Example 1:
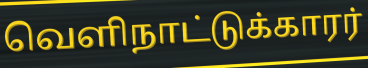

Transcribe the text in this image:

வெளிநாட்டுக்காரர்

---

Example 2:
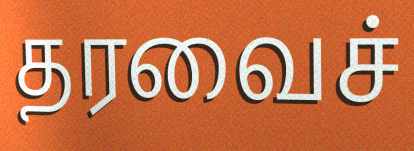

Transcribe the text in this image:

தரவைச்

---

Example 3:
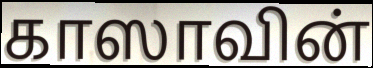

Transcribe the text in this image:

காஸாவின்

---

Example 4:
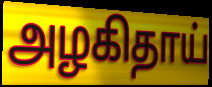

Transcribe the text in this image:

அழகிதாய்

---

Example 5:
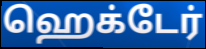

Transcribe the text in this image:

ஹெக்டேர்